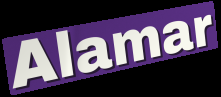
Alamar